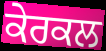
ਕੇਰਕਲ